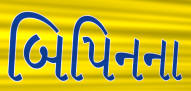
બિપિનના